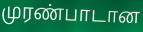
முரண்பாடான